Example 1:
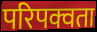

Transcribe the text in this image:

परिपक्‍वता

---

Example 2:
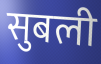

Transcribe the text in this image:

सुबली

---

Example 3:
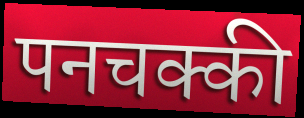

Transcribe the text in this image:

पनचक्की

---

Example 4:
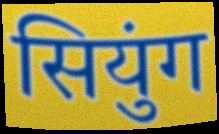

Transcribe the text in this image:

सियुंग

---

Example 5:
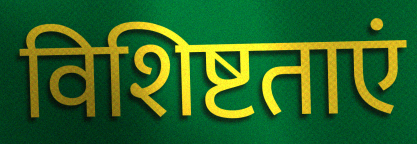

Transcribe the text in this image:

विशिष्टताएं